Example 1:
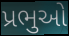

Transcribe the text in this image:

પ્રભુઓ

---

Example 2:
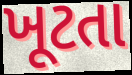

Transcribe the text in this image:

ખૂટતા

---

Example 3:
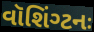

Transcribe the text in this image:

વૉશિંગ્ટનઃ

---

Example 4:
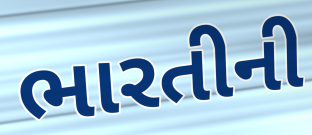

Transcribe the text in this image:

ભારતીની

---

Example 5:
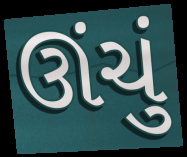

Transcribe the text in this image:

ઊંચું